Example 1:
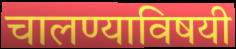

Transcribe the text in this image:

चालण्याविषयी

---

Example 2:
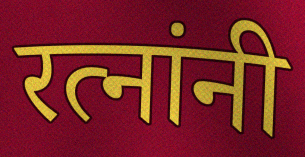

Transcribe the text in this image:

रत्नांनी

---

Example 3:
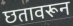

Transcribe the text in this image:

छतावरून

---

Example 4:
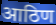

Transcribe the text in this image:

आठिण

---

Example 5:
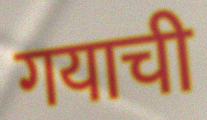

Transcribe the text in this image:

गयाची